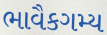
ભાવૈકગમ્ય